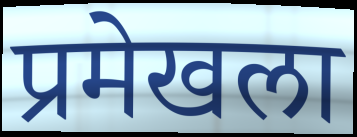
प्रमेखला